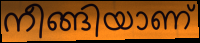
നീങ്ങിയാണ്